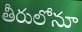
తీరులోనూ